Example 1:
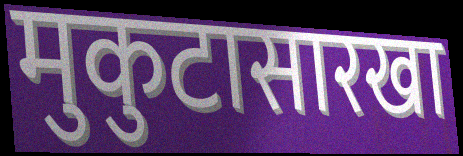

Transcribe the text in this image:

मुकुटासारखा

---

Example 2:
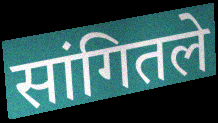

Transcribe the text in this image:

सांगितले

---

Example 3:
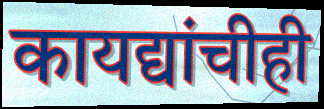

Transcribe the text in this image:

कायद्यांचीही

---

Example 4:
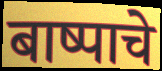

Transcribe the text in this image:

बाष्पाचे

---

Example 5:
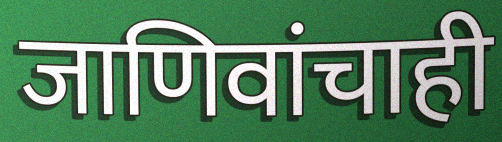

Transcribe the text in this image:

जाणिवांचाही